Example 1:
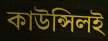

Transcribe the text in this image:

কাউন্সিলই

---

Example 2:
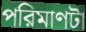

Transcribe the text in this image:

পরিমাণটা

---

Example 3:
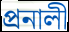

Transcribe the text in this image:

প্রনালী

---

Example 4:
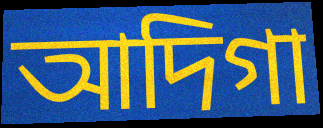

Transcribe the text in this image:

আদিগা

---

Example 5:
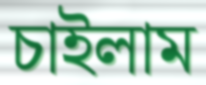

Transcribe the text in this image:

চাইলাম